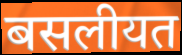
बसलीयत